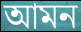
আমন